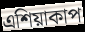
এশিয়াকাপ